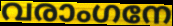
വരാംഗനേ